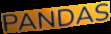
PANDAS